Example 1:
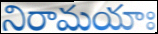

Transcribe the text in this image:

నిరామయాః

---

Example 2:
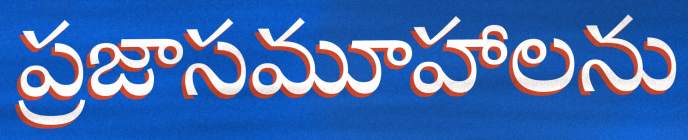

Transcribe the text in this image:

ప్రజాసమూహాలను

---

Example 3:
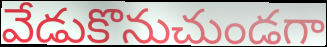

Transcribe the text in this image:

వేడుకొనుచుండగా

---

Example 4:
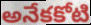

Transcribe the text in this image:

అనేకకోటి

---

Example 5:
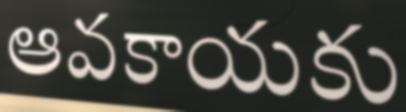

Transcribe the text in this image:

ఆవకాయకు